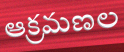
ఆక్రమణల